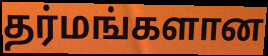
தர்மங்களான